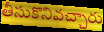
తీసుకొనివచ్చారు